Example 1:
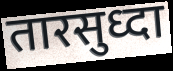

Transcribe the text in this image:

तारसुध्दा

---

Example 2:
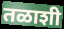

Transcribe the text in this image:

तळाशी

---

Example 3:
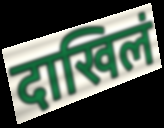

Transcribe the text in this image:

दाखिलं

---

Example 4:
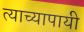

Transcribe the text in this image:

त्याच्यापायी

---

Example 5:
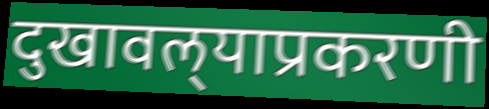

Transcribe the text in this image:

दुखावल्याप्रकरणी